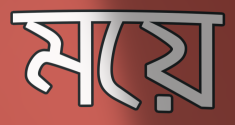
ময়ে